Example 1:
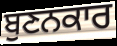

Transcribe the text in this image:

ਬੁਣਨਕਾਰ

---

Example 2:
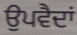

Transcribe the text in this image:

ਉਪਵੈਦਾਂ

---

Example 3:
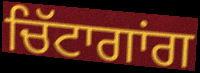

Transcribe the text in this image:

ਚਿੱਟਾਗਾਂਗ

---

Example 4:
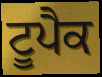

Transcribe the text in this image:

ਟੂਪੈਕ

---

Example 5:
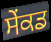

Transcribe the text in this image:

ਸੇਂਕਡ